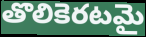
తొలికెరటమై